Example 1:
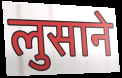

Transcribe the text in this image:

लुसाने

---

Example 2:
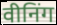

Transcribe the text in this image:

वीनिंग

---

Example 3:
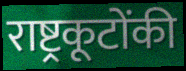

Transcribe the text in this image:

राष्ट्रकूटोंकी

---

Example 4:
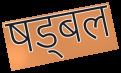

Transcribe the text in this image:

षड्बल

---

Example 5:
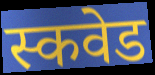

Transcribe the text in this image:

स्कवेड